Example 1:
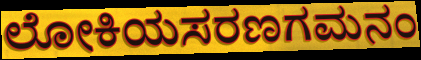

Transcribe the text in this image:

ಲೋಕಿಯಸರಣಗಮನಂ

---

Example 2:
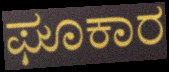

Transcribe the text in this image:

ಘೂಕಾರ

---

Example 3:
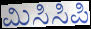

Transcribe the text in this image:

ಮಿಸಿಸಿಪಿ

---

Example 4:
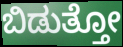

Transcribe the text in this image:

ಬಿಡುತ್ತೋ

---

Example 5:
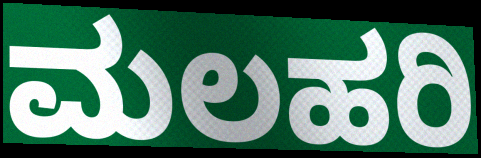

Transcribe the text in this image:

ಮಲಹರಿ